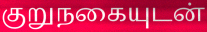
குறுநகையுடன்